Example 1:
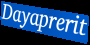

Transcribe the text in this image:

Dayaprerit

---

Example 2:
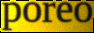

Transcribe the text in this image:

poreo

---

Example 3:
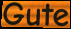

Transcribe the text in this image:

Gute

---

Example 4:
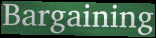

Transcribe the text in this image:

Bargaining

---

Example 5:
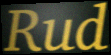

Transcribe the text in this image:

Rud